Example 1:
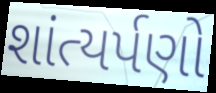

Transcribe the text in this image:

શાંત્યર્પણો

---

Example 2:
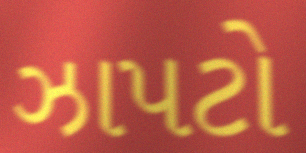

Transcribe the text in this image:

ઝાપટો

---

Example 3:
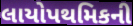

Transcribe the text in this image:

લાયોપથમિકની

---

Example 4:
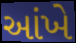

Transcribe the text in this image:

આંખે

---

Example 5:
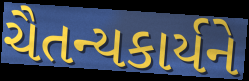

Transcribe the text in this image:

ચૈતન્યકાર્યને